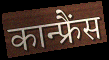
कान्फ्रैंस